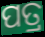
ପତ୍ର